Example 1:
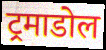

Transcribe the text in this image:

ट्रमाडोल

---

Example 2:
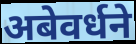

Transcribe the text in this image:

अबेवर्धने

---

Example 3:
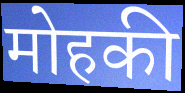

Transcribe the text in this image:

मोहकी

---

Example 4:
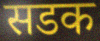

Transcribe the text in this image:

सडक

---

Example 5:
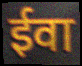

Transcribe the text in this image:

ईवा